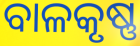
ବାଳକୃଷ୍ଣ